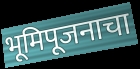
भूमिपूजनाचा